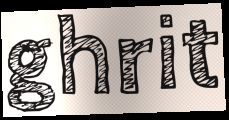
ghrit